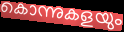
കൊന്നുകളയും